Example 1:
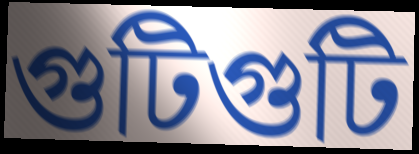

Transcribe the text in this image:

গুটিগুটি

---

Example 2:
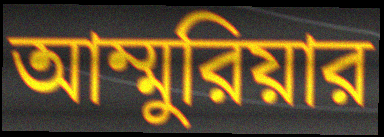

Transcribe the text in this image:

আম্মুরিয়ার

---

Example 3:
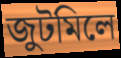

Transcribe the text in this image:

জুটমিলে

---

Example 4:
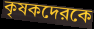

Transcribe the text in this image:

কৃষকদেরকে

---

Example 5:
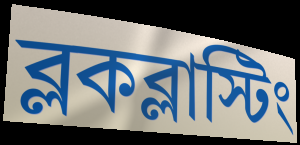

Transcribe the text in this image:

ব্লকব্লাস্টিং